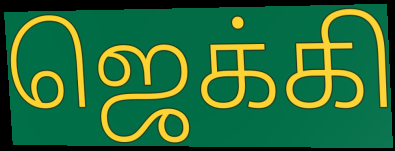
ஜெக்கி